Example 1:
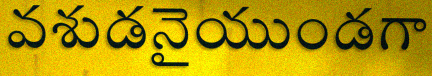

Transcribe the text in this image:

వశుడనైయుండగా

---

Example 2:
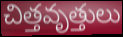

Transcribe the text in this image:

చిత్తవృత్తులు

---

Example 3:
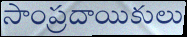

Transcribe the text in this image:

సాంప్రదాయికులు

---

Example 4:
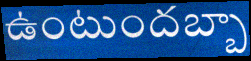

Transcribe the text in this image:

ఉంటుందబ్బా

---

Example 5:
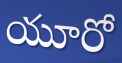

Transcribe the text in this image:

యూరో